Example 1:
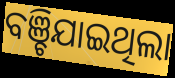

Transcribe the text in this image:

ବଞ୍ଚିଯାଇଥିଲା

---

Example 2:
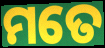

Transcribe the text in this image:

ମତେ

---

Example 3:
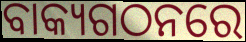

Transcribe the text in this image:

ବାକ୍ୟଗଠନରେ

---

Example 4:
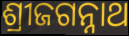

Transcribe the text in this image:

ଶ୍ରୀଜଗନ୍ନାଥ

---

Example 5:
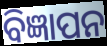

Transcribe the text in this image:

ବିଜ୍ଞାପନ